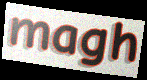
magh